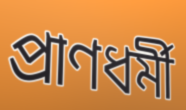
প্রাণধর্মী